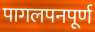
पागलपनपूर्ण